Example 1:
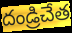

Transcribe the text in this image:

దండ్రిచేత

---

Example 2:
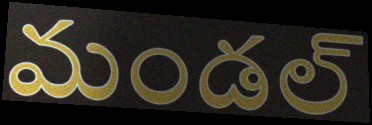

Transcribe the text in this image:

మండల్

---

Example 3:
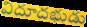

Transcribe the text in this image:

విదూదభుడు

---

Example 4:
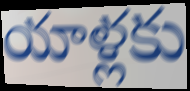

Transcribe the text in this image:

యాళ్లకు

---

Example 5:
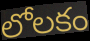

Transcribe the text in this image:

లోలకం